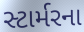
સ્ટાર્મરના